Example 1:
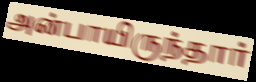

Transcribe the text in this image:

அன்பாயிருந்தார்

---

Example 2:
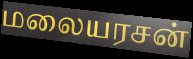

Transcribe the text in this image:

மலையரசன்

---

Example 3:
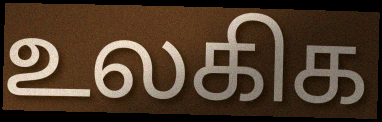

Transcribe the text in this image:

உலகிக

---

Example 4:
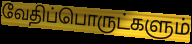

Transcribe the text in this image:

வேதிப்பொருட்களும்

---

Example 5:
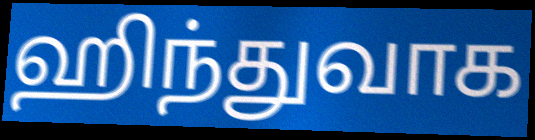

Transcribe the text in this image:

ஹிந்துவாக